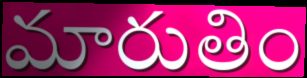
మారుతిం